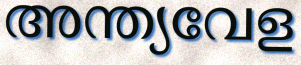
അന്ത്യവേള